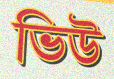
ভিউ